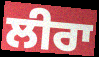
ਲੀਰਾ